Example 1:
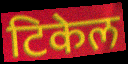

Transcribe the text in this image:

टिकेल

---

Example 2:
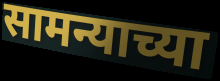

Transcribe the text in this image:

सामन्याच्या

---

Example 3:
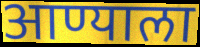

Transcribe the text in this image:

आण्याला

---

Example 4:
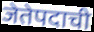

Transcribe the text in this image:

जेतेपदाची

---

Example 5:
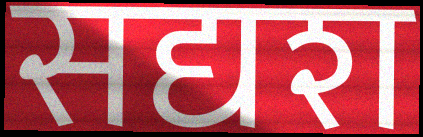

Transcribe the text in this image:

सद्यश